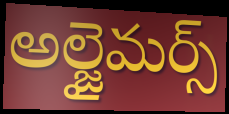
అల్జైమర్స్